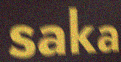
saka